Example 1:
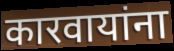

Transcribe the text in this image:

कारवायांना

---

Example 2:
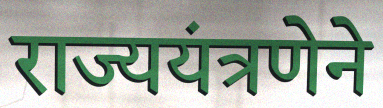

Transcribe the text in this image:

राज्ययंत्रणेने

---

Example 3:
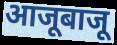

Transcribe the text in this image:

आजूबाजू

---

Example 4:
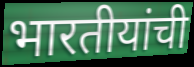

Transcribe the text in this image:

भारतीयांची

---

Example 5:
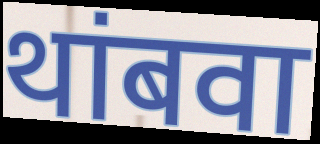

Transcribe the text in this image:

थांबवा